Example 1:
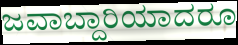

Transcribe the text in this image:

ಜವಾಬ್ದಾರಿಯಾದರೂ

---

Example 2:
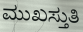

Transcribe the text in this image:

ಮುಖಸ್ತುತಿ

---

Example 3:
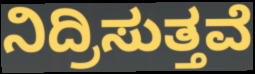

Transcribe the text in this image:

ನಿದ್ರಿಸುತ್ತವೆ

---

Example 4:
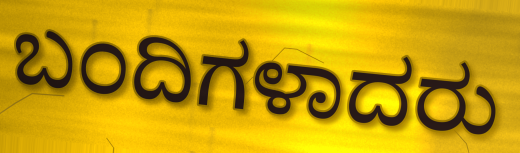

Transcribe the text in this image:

ಬಂದಿಗಳಾದರು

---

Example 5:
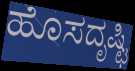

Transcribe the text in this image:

ಹೊಸದೃಷ್ಟಿ